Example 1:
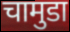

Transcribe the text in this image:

चामुडा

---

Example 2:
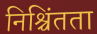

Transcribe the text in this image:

निश्चिंतता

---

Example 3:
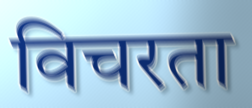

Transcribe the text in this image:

विचरता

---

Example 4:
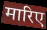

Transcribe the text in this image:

मारिए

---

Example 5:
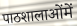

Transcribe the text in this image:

पाठशालाओंमें